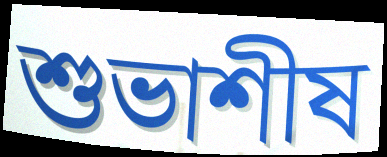
শুভাশীষ